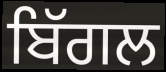
ਬਿੱਗਲ